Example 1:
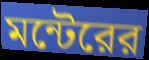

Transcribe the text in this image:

মন্টেরের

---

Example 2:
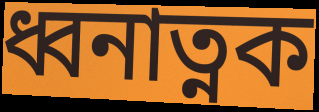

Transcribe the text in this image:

ধ্বনাত্নক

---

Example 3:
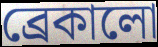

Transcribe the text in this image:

ব্রেকালো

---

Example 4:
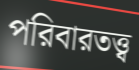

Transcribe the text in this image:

পরিবারতত্ত্ব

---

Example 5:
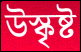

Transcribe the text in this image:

উস্কৃষ্ট